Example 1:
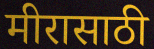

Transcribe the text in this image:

मीरासाठी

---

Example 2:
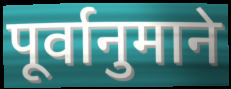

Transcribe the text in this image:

पूर्वानुमाने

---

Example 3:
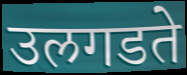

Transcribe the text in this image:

उलगडते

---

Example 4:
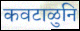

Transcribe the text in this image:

कवटाळुनि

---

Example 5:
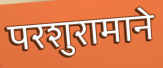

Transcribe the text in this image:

परशुरामाने